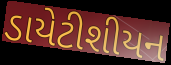
ડાયેટીશીયન